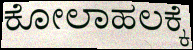
ಕೋಲಾಹಲಕ್ಕೆ